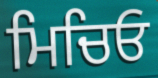
ਮਿਚਿਓ